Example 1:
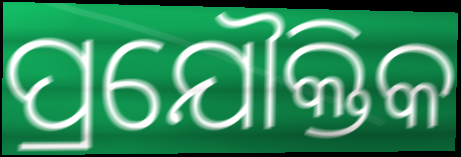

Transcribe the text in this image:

ପ୍ରଯୌକ୍ତିକ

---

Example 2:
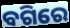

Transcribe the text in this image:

ବଗିରେ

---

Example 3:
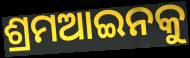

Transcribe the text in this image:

ଶ୍ରମଆଇନକୁ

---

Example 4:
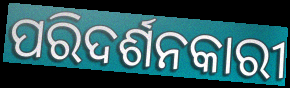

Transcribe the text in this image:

ପରିଦର୍ଶନକାରୀ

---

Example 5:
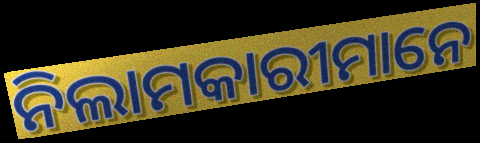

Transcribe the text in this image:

ନିଲାମକାରୀମାନେ